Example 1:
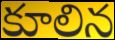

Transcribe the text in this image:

కూలిన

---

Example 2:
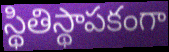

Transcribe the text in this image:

స్థితిస్థాపకంగా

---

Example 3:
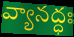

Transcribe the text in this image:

వ్యానద్ధః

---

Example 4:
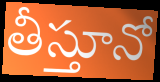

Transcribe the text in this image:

తీస్తూనో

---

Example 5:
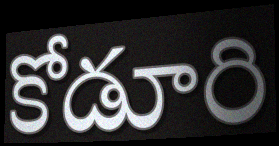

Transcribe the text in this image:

కోడూరి